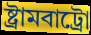
ষ্ট্ৰামবাট্ৰো